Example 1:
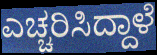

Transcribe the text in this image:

ಎಚ್ಚರಿಸಿದ್ದಾಳೆ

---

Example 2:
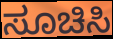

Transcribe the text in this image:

ಸೂಚಿಸಿ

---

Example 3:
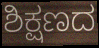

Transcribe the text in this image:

ಶಿಕ್ಷಣದ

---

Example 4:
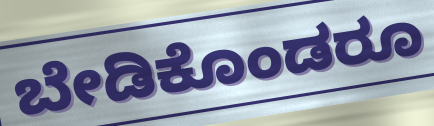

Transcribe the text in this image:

ಬೇಡಿಕೊಂಡರೂ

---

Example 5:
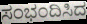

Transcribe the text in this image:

ಸಂಭಂದಿಸಿದ